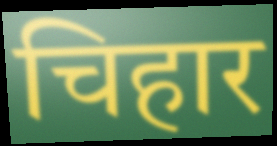
चिहार